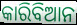
କାରିବିଆନ